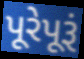
પૂરેપૂરૂં